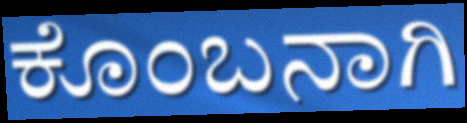
ಕೊಂಬನಾಗಿ